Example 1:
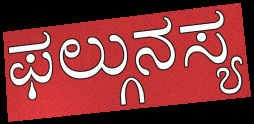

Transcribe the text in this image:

ಫಲ್ಗುನಸ್ಯ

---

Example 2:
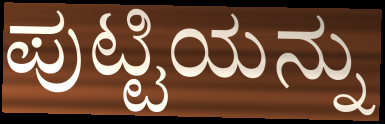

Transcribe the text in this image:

ಪುಟ್ಟಿಯನ್ನು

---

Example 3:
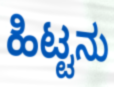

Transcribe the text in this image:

ಹಿಟ್ಟನು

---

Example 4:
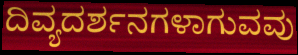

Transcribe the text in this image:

ದಿವ್ಯದರ್ಶನಗಳಾಗುವವು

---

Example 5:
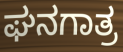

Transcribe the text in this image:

ಘನಗಾತ್ರ